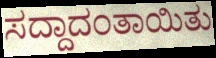
ಸದ್ದಾದಂತಾಯಿತು